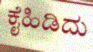
ಕೈಹಿಡಿದು